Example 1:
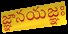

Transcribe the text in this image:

జ్ఞానయజ్ఞః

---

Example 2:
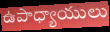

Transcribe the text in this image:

ఉపాధ్యాయులు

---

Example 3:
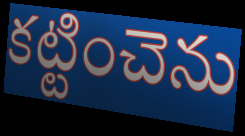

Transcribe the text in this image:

కట్టించెను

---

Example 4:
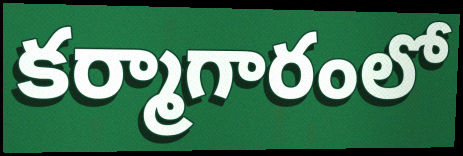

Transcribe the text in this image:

కర్మాగారంలో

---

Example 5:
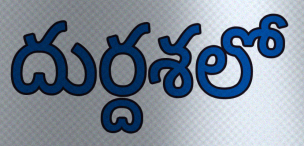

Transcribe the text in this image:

దుర్దశలో